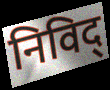
निविद्